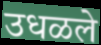
उधळले